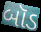
બૉડ